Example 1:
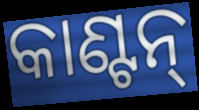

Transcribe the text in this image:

କାଣ୍ଟନ୍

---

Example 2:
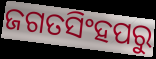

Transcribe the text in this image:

ଜଗତସିଂହପରୁ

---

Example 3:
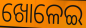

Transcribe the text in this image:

ଖୋଳେଇ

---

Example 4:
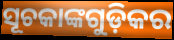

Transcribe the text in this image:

ସୂଚକାଙ୍କଗୁଡ଼ିକର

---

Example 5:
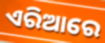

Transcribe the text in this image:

ଏରିଆରେ